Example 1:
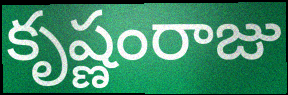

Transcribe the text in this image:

కృష్ణంరాజు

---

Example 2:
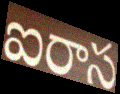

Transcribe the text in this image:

ఐరాస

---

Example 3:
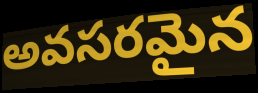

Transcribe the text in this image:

అవసరమైన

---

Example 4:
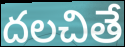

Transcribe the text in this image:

దలచితే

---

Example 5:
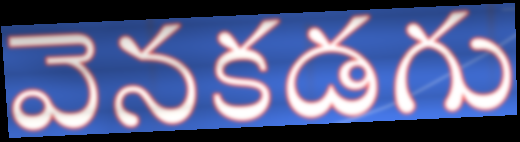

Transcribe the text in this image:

వెనకడగు